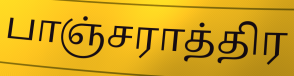
பாஞ்சராத்திர